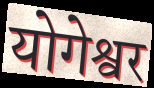
योगेश्वर